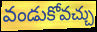
వండుకోవచ్చు